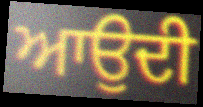
ਆਉਦੀ